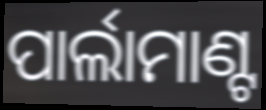
ପାର୍ଲାମାଣ୍ଟ